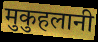
मुकुहलानी